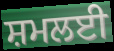
ਸ਼ਮਲਈ